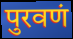
पुरवणं